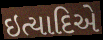
ઇત્યાદિએ